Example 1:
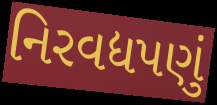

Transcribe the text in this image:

નિરવદ્યપણું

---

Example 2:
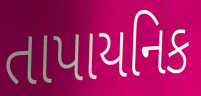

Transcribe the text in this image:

તાપાયનિક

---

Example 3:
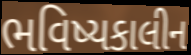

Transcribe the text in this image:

ભવિષ્યકાલીન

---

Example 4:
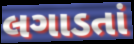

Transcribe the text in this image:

લગાડતાં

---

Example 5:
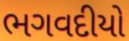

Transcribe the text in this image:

ભગવદીયો